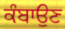
ਕੰਬਾਉਣ